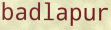
badlapur